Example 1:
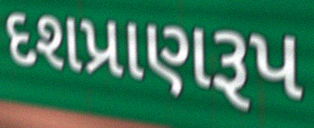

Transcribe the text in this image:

દશપ્રાણરૂપ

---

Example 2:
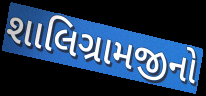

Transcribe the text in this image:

શાલિગ્રામજીનો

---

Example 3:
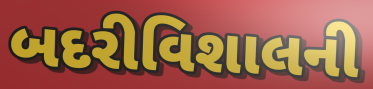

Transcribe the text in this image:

બદરીવિશાલની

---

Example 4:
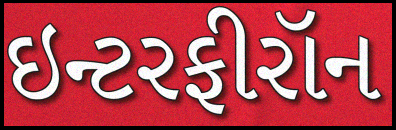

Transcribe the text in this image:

ઇન્ટરફીરૉન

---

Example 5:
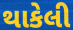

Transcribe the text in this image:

થાકેલી